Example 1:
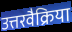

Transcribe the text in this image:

उत्तरवैक्रिया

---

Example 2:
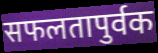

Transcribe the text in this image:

सफलतापुर्वक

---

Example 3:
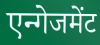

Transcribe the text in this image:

एन्गेजमेंट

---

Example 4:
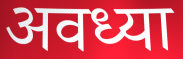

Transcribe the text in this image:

अवध्या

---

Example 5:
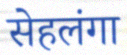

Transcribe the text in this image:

सेहलंगा